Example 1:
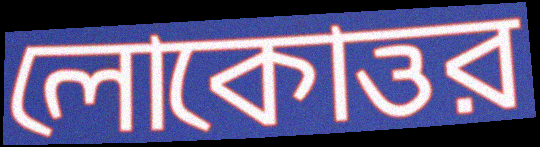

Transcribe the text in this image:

লোকোত্তর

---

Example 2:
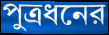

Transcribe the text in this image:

পুত্রধনের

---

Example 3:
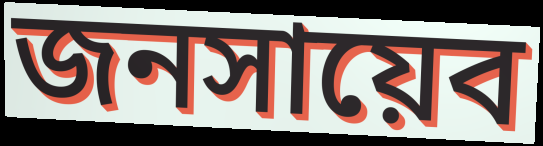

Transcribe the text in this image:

জনসায়েব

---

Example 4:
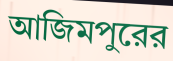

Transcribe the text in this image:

আজিমপুরের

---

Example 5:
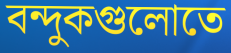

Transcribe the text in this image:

বন্দুকগুলোতে